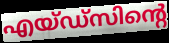
എയ്ഡ്സിന്റെ